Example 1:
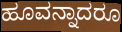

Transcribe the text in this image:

ಹೂವನ್ನಾದರೂ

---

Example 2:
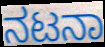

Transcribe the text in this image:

ನಟನಾ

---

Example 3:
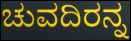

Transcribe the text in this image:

ಚುವದಿರನ್ನ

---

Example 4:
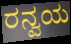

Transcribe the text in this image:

ರನ್ವಯ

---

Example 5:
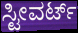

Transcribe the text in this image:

ಸ್ಟೀವರ್ಟ್